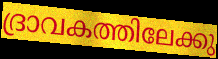
ദ്രാവകത്തിലേക്കു